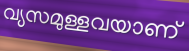
വ്യസമുള്ളവയാണ്